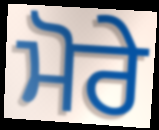
ਮੋਰੇ